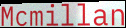
Mcmillan